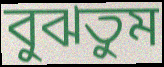
বুঝতুম